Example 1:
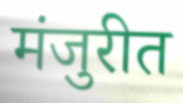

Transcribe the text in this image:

मंजुरीत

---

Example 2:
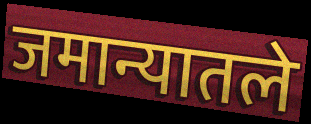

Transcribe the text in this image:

जमान्यातले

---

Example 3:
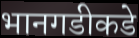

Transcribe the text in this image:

भानगडीकडे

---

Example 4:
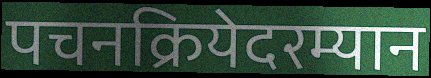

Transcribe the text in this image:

पचनक्रियेदरम्यान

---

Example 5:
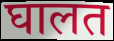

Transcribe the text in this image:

घालत